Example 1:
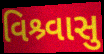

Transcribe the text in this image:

વિશ્ર્વાસુ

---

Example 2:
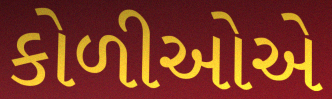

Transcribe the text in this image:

કોળીઓએ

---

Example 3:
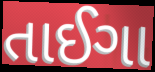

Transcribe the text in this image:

તાઈગા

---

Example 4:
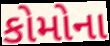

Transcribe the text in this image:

કોમોના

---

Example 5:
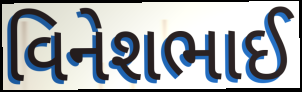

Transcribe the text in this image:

વિનેશભાઈ